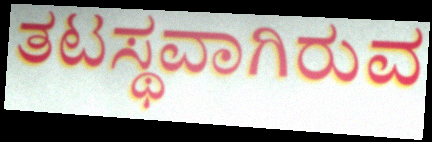
ತಟಸ್ಥವಾಗಿರುವ